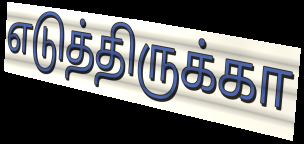
எடுத்திருக்கா